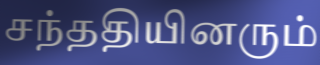
சந்ததியினரும்